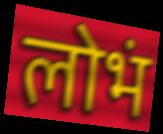
लोभं